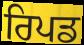
ਰਿਪਡ